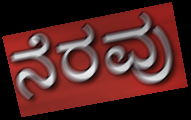
ನೆರವು